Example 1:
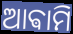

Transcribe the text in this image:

ଆଵାମି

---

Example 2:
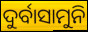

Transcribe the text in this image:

ଦୁର୍ବାସାମୁନି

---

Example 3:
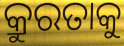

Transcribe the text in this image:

କ୍ରୁରତାକୁ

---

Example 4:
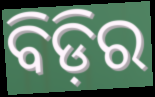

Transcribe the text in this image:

ବିଡ଼ିର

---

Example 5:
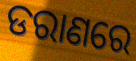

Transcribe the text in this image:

ଡରାଣରେ